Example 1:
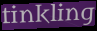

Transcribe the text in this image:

tinkling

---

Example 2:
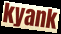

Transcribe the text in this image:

kyank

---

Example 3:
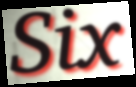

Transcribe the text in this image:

Six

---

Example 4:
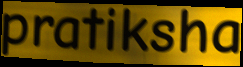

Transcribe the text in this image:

pratiksha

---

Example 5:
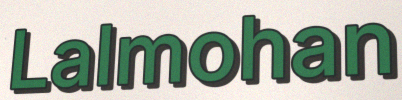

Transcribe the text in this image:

Lalmohan